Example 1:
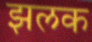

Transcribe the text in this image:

झलक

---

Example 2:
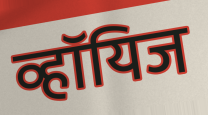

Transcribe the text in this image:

व्हॉयिज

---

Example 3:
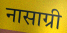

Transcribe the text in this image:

नासाग्री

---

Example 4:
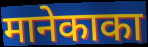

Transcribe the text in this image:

मानेकाका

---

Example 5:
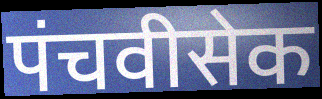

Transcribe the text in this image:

पंचवीसेक